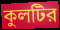
কুলটির